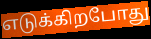
எடுக்கிறபோது